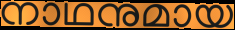
നാഥനുമായ